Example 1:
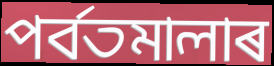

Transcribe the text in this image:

পৰ্বতমালাৰ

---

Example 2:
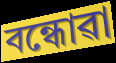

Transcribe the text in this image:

বন্ধোৱা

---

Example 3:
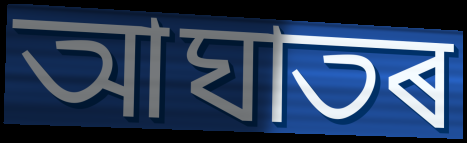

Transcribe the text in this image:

আঘাতৰ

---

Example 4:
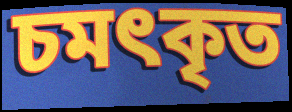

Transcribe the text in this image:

চমৎকৃত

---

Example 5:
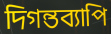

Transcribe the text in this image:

দিগন্তব্যাপি